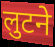
लुटने